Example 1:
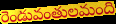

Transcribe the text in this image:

రెండువంతులమంది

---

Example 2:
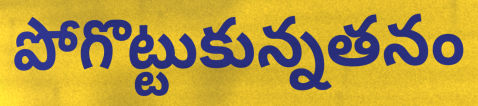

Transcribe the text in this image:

పోగొట్టుకున్నతనం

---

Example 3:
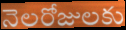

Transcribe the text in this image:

నెలరోజులకు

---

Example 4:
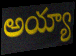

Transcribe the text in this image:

అయ్యా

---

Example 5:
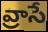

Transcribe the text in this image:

వ్రాసే